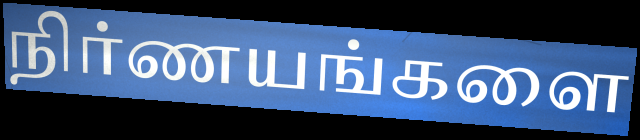
நிர்ணயங்களை